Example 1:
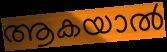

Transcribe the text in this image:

ആകയാൽ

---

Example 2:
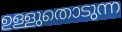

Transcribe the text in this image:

ഉള്ളുതൊടുന്ന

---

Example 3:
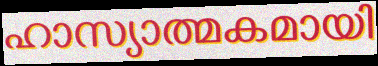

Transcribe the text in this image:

ഹാസ്യാത്മകമായി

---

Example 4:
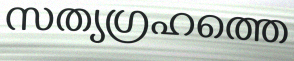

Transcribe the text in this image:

സത്യഗ്രഹത്തെ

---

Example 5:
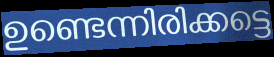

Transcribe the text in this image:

ഉണ്ടെന്നിരിക്കട്ടെ